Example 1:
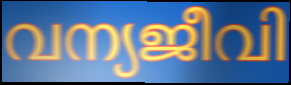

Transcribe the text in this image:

വന്യജീവി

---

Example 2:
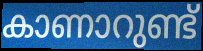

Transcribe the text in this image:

കാണാറുണ്ട്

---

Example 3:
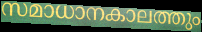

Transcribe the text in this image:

സമാധാനകാലത്തും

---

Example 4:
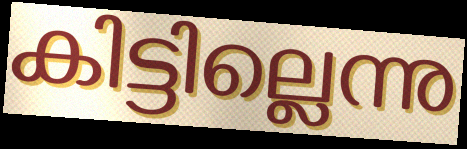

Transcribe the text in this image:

കിട്ടില്ലെന്നു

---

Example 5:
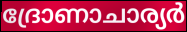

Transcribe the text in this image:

ദ്രോണാചാര്യർ